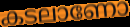
കടലാണോ